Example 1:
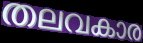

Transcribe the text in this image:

തലവകാര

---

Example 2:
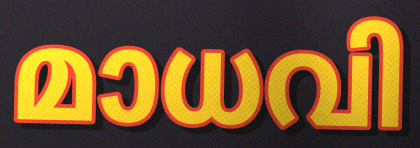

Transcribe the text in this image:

മാധവി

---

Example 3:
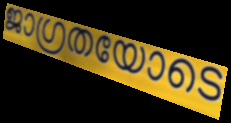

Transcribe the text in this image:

ജാഗ്രതയോടെ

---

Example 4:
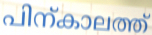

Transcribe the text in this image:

പിന്കാലത്ത്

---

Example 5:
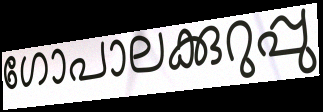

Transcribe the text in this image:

ഗോപാലക്കുറുപ്പു